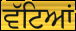
ਵੱਟਿਆਂ